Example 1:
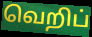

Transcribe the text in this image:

வெறிப்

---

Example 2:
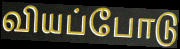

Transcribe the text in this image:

வியப்போடு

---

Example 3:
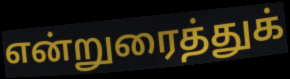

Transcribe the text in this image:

என்றுரைத்துக்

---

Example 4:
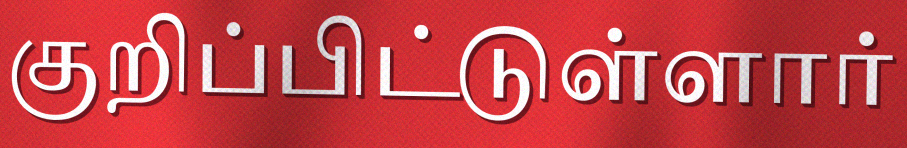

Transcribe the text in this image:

குறிப்பிட்டுள்ளார்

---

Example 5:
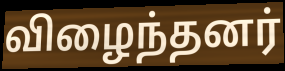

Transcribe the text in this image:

விழைந்தனர்